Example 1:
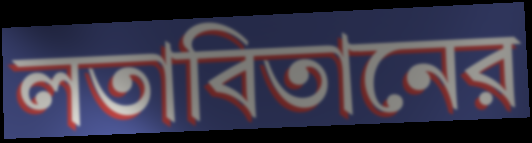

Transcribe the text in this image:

লতাবিতানের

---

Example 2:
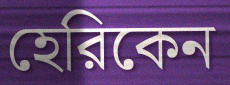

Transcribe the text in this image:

হেরিকেন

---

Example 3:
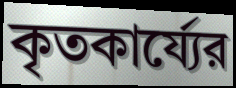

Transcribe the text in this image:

কৃতকার্য্যের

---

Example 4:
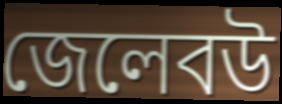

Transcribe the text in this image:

জেলেবউ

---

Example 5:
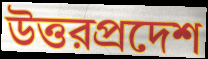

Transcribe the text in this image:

উত্তরপ্রদেশ